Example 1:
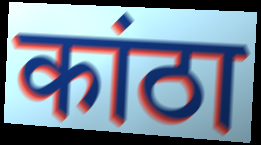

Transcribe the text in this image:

कांठा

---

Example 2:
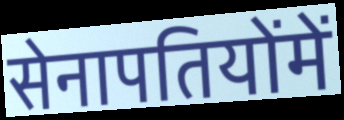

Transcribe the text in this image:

सेनापतियोंमें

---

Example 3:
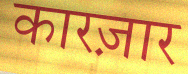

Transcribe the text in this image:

कारज़ार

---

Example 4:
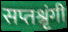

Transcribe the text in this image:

सप्तश्रृंगी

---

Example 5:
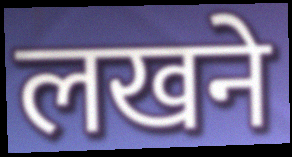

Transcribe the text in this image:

लखने